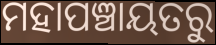
ମହାପଞ୍ଚାୟତରୁ